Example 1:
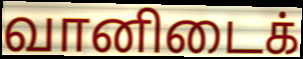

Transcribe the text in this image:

வானிடைக்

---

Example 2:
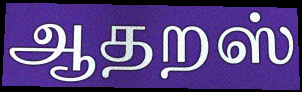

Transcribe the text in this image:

ஆதறஸ்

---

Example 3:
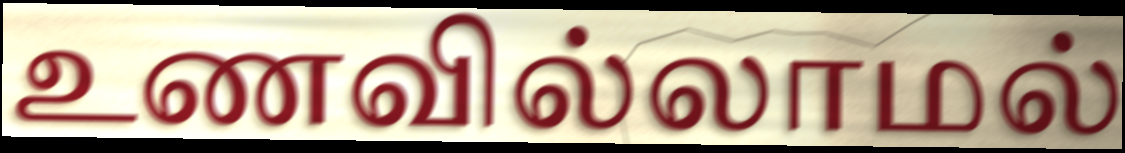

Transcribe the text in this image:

உணவில்லாமல்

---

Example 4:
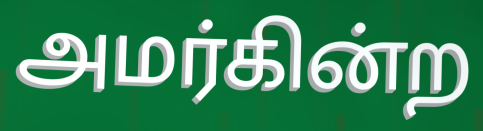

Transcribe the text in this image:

அமர்கின்ற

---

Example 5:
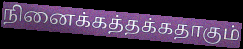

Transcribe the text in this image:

நினைக்கத்தக்கதாகும்